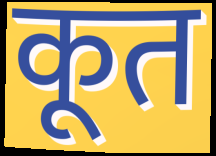
कूत